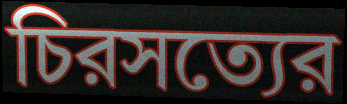
চিরসত্যের